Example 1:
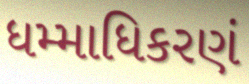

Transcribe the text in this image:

ધમ્માધિકરણં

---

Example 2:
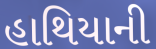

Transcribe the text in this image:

હાથિયાની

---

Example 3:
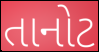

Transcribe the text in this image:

તાનોટ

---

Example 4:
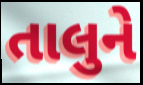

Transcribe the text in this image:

તાલુને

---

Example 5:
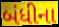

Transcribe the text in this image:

બંધીના